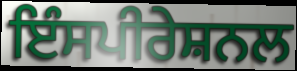
ਇੰਸਪੀਰੇਸ਼ਨਲ